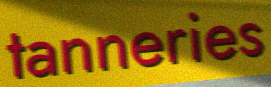
tanneries